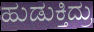
ಹುಡುಕ್ತಿದ್ರು